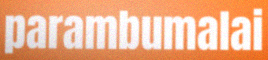
parambumalai